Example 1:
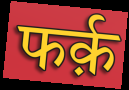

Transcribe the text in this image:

फर्क़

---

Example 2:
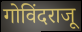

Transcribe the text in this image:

गोविंदराजू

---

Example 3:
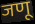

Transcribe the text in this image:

जणू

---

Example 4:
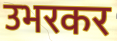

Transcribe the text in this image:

उभरकर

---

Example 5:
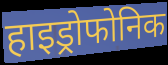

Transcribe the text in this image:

हाइड्रोफोनिक